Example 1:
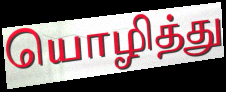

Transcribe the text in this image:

யொழித்து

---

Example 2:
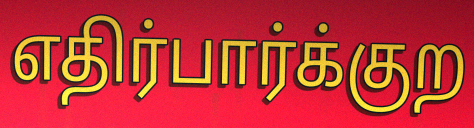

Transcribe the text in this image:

எதிர்பார்க்குற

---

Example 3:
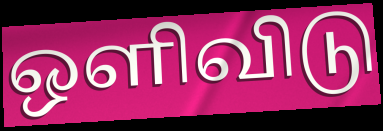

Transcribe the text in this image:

ஒளிவிடு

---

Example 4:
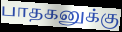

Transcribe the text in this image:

பாதகனுக்கு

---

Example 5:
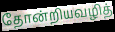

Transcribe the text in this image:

தோன்றியவழித்